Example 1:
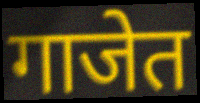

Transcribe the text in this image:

गाजेत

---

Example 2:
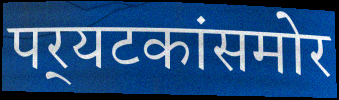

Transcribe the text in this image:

पर्यटकांसमोर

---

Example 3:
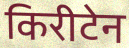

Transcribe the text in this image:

किरीटेन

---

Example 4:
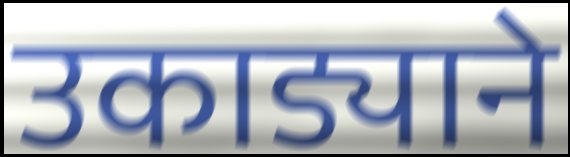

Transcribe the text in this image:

उकाड्याने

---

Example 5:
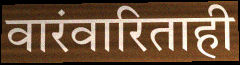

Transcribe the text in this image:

वारंवारिताही